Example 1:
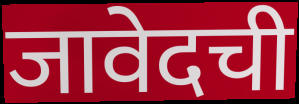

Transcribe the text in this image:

जावेदची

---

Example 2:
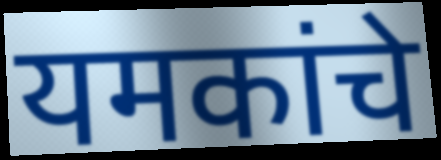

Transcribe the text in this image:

यमकांचे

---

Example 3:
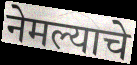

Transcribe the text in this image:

नेमल्याचे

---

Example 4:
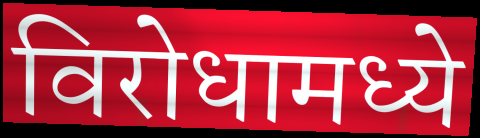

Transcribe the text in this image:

विरोधामध्ये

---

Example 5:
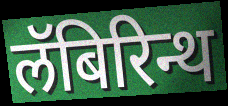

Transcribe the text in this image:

लॅबिरिन्थ